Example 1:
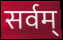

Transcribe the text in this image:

सर्वम्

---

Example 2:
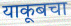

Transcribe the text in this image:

याकूबचा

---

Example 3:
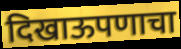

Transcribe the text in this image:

दिखाऊपणाचा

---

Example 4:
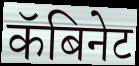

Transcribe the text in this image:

कॅबिनेट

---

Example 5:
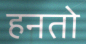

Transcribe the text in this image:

हनतो